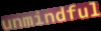
unmindful